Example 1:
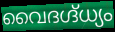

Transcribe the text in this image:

വൈദഗ്ദ്ധ്യം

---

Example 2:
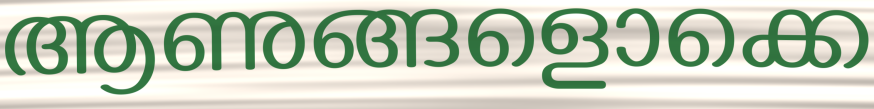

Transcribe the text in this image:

ആണുങ്ങളൊക്കെ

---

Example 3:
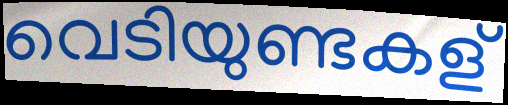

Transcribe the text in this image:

വെടിയുണ്ടകള്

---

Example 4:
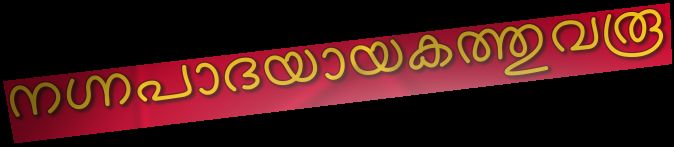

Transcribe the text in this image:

നഗ്നപാദയായകത്തുവരൂ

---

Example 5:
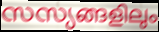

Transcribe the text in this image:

സസ്യങ്ങളിലും